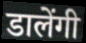
डालेंगी